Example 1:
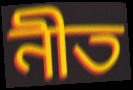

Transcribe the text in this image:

নীত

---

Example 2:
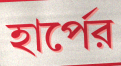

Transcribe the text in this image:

হার্পের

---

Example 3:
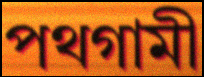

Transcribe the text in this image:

পথগামী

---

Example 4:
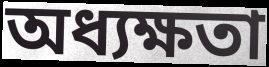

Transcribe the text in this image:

অধ্যক্ষতা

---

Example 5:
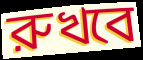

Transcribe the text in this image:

রুখবে